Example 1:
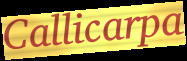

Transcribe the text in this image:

Callicarpa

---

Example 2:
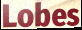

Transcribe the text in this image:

Lobes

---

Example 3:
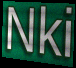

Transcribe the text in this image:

Nki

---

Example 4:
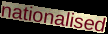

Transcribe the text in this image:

nationalised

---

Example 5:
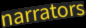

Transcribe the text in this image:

narrators